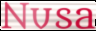
Nusa